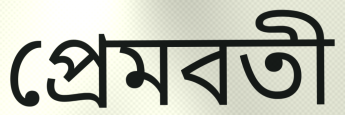
প্রেমবতী